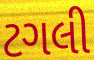
ટગલી